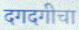
दगदगीचा